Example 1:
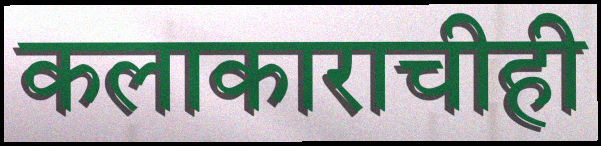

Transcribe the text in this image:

कलाकाराचीही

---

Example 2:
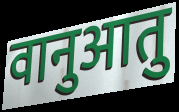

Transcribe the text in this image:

वानुआतु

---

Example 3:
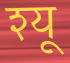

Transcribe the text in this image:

श्यू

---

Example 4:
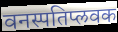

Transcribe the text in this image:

वनस्पतिप्लवक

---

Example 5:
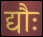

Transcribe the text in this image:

द्यौः